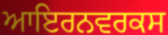
ਆਇਰਨਵਰਕਸ